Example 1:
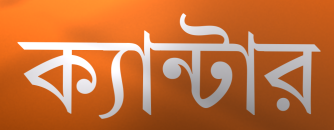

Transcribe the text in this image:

ক্যান্টার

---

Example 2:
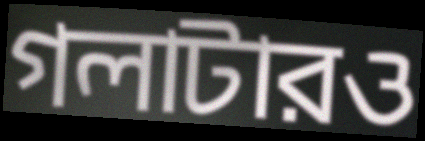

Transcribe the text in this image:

গলাটারও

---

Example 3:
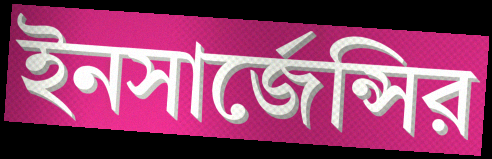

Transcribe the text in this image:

ইনসার্জেন্সির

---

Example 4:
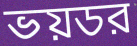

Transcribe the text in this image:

ভয়ডর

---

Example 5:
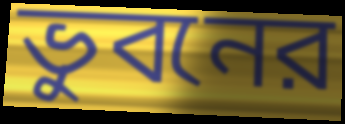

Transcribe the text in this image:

ভুবনের